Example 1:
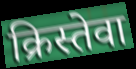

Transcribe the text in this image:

क्रिस्तेवा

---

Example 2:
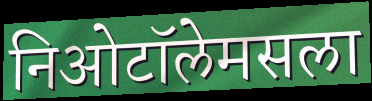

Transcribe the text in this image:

निओटॉलेमसला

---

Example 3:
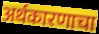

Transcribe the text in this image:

अर्थकारणाचा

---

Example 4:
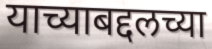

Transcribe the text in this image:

याच्याबद्दलच्या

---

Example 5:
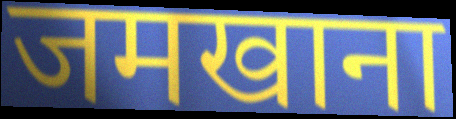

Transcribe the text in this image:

जमखाना